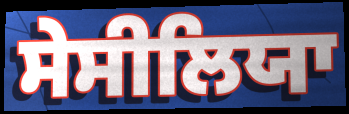
ਸੇਸੀਲਿਯਾ